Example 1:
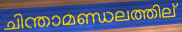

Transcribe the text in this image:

ചിന്താമണ്ഡലത്തില്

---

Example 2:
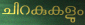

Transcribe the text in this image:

ചിറകുകളും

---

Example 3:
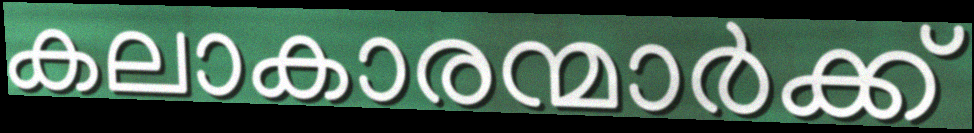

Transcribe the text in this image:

കലാകാരന്മാർക്ക്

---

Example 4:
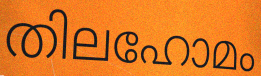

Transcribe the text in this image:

തിലഹോമം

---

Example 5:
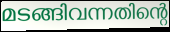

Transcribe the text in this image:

മടങ്ങിവന്നതിന്റെ